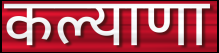
कल्याणा